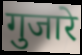
गुजारे